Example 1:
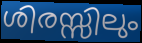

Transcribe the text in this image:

ശിരസ്സിലും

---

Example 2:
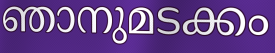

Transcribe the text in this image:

ഞാനുമടക്കം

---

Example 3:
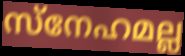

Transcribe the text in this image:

സ്നേഹമല്ല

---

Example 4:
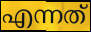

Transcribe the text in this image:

എന്നത്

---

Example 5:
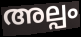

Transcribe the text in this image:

അല്പം